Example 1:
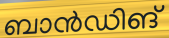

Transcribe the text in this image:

ബാൻഡിങ്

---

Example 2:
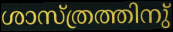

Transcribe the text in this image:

ശാസ്ത്രത്തിനു്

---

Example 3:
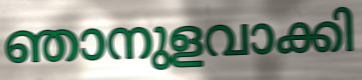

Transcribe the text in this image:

ഞാനുളവാക്കി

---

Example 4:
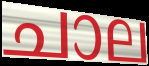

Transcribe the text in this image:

ചാല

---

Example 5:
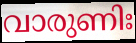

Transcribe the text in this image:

വാരുണിഃ